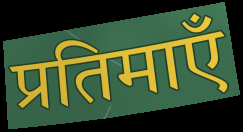
प्रतिमाएँ